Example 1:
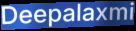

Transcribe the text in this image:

Deepalaxmi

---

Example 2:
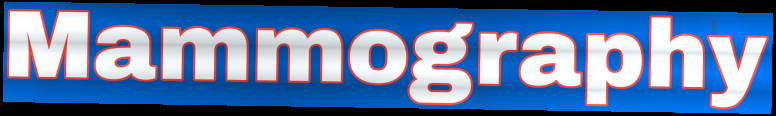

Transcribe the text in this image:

Mammography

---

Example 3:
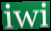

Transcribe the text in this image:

iwi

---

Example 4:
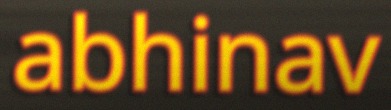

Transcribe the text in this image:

abhinav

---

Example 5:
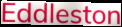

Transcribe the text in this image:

Eddleston